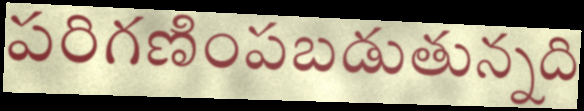
పరిగణింపబడుతున్నది